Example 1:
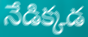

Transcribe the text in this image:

నేడిక్కడ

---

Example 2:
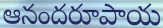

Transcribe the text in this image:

ఆనందరూపాయ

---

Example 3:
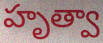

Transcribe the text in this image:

హృత్వా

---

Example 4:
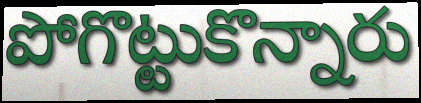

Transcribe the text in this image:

పోగొట్టుకొన్నారు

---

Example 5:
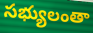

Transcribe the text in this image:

సభ్యులంతా